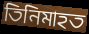
তিনিমাহত